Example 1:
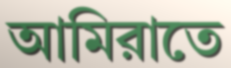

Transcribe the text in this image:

আমিরাতে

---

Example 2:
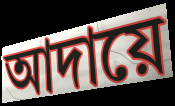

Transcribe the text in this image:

আদায়ে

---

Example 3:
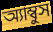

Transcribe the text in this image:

অ্যাম্বুস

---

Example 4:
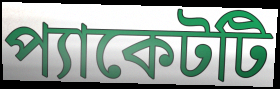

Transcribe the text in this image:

প্যাকেটটি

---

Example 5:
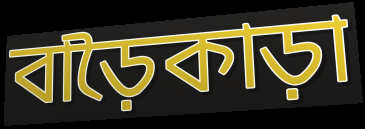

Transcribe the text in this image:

বাড়ৈকাড়া